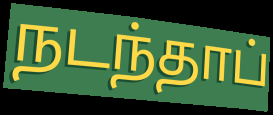
நடந்தாப்